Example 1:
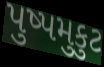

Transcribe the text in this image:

પુષ્પમુકુટ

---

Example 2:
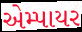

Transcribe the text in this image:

એમ્પાયર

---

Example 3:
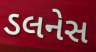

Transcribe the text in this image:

ડલનેસ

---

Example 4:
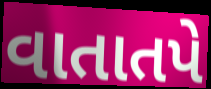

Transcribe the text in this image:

વાતાતપે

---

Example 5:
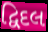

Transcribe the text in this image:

દ્વિદલ